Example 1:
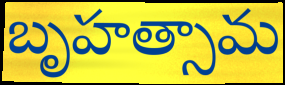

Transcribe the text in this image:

బృహత్సామ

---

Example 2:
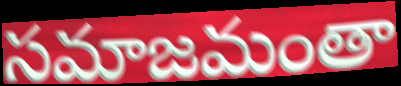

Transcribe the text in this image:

సమాజమంతా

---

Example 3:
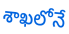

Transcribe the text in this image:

శాఖలోనే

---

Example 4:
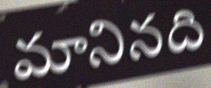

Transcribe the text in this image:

మానినది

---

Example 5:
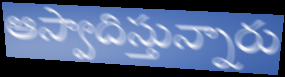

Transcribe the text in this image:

ఆస్వాదిస్తున్నారు